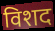
विशद